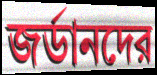
জর্ডানদের